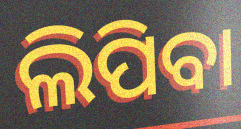
ଲିପିବା